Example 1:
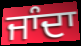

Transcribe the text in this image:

ਜਾੰਦਾ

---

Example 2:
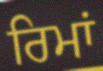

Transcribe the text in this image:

ਰਿਮਾਂ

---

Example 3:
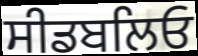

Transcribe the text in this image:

ਸੀਡਬਲਿਓ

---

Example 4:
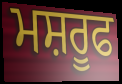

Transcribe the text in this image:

ਮਸ਼ਰੂਫ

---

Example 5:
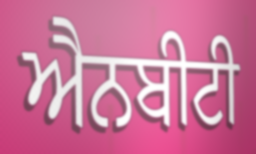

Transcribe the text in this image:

ਐਨਬੀਟੀ